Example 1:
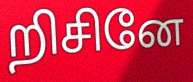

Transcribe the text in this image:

றிசினே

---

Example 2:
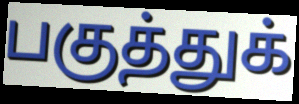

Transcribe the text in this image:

பகுத்துக்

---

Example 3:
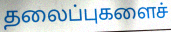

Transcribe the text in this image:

தலைப்புகளைச்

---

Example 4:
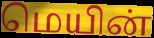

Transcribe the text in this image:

மெயின்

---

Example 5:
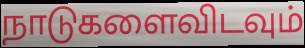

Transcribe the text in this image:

நாடுகளைவிடவும்